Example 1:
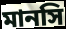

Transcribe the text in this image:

মানসি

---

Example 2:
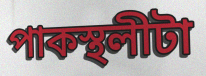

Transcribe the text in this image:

পাকস্থলীটা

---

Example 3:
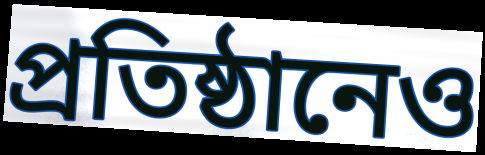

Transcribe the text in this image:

প্রতিষ্ঠানেও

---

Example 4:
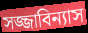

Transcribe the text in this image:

সজ্জাবিন্যাস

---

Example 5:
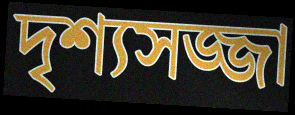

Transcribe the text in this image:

দৃশ্যসজ্জা